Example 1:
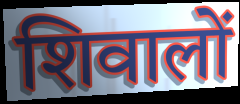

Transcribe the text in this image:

शिवालों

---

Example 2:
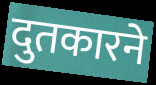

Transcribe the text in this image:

दुतकारने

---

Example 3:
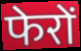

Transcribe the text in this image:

फेरों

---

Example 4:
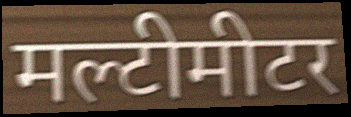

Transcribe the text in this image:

मल्टीमीटर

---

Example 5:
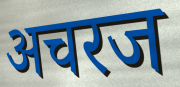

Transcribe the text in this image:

अचरज